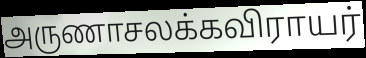
அருணாசலக்கவிராயர்